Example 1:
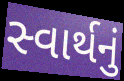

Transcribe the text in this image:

સ્વાર્થનું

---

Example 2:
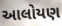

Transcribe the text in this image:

આલોયણ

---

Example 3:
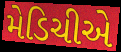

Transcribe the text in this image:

મેડિચીએ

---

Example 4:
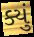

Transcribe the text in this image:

ક્યું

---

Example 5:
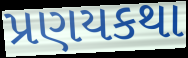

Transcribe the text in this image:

પ્રણયકથા